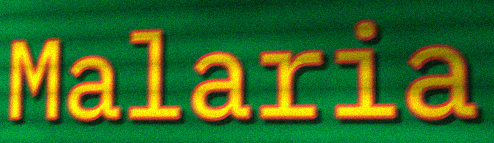
Malaria